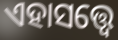
ଏହାସତ୍ତ୍ବେ